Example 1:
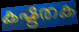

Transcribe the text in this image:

കഷ്ടതക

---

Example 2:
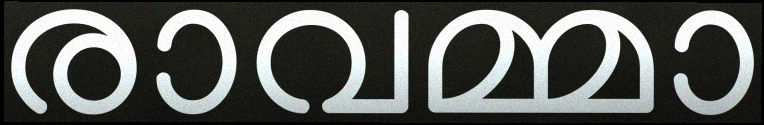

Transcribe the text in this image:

രാവമ്മാ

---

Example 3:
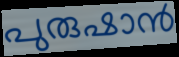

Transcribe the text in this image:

പുരുഷാൻ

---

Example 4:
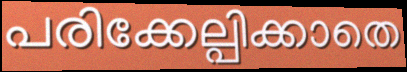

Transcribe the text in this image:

പരിക്കേല്പിക്കാതെ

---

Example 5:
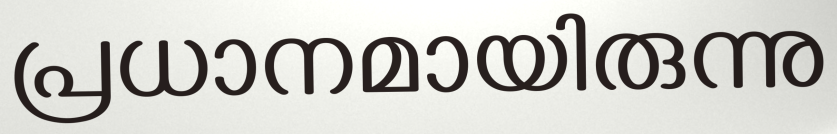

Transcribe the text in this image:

പ്രധാനമായിരുന്നു